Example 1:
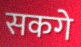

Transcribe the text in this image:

सकगे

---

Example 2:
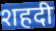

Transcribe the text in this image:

शहदी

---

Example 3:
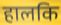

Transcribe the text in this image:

हालकि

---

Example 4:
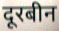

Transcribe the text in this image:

दूरबीन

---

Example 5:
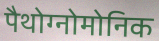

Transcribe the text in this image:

पैथोग्नोमोनिक